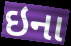
ઇના